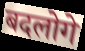
बदलोगे